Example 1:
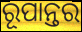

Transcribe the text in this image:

ରୂପାନ୍ତର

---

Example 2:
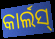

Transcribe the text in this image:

କାର୍ଲସ୍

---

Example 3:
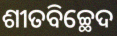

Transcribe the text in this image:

ଶୀତବିଚ୍ଛେଦ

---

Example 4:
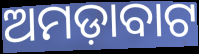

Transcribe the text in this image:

ଅମଡ଼ାବାଟ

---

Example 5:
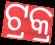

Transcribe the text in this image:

ଟ୍ରକ୍ର